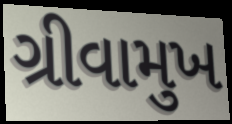
ગ્રીવામુખ